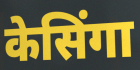
केसिंगा